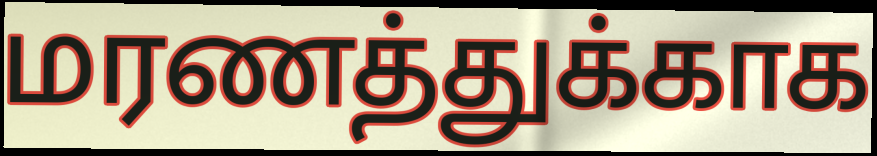
மரணத்துக்காக